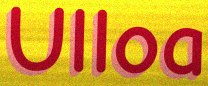
Ulloa